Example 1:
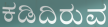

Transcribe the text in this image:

ಕಡಿದಿರುವ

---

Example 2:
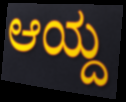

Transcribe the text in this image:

ಆಯ್ದ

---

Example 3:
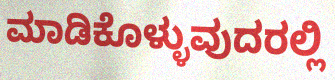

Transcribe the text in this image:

ಮಾಡಿಕೊಳ್ಳುವುದರಲ್ಲಿ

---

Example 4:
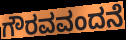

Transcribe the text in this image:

ಗೌರವವಂದನೆ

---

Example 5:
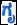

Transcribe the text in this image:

ಗೃ